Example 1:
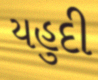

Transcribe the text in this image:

યહુદી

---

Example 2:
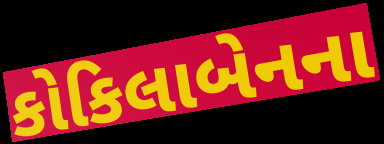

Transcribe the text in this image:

કોકિલાબેનના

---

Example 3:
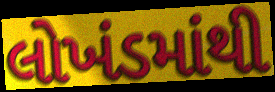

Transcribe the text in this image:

લોખંડમાંથી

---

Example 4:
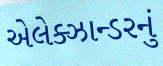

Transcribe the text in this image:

એલેક્ઝાન્ડરનું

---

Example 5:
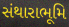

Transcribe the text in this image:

સંથારાભૂમિ